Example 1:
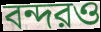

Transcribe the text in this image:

বন্দরও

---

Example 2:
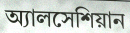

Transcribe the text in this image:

অ্যালসেশিয়ান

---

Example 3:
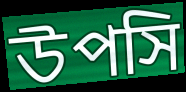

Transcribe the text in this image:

উপসি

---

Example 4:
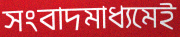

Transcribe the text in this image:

সংবাদমাধ্যমেই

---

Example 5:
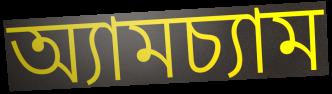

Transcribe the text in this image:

অ্যামচ্যাম